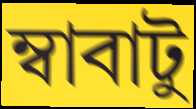
ম্বাবাটু